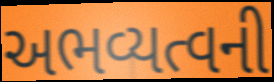
અભવ્યત્વની